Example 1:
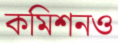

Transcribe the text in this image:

কমিশনও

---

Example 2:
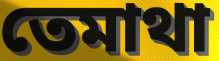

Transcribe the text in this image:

তেমাথা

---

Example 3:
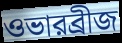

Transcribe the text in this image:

ওভারব্রীজ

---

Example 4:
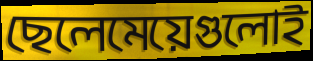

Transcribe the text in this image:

ছেলেমেয়েগুলোই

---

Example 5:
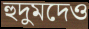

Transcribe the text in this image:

হুদুমদেও